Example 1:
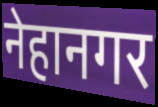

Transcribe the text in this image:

नेहानगर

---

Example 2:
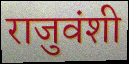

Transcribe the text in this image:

राजुवंशी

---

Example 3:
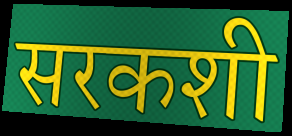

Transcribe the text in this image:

सरकशी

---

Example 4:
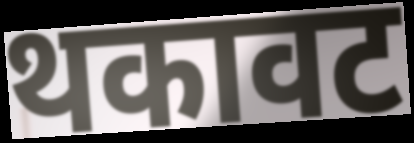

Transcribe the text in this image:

थकावट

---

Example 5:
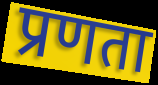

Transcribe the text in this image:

प्रणता